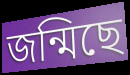
জন্মিছে